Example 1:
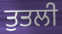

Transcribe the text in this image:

ਤੁਤਲੀ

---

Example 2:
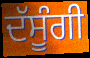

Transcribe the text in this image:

ਦੱਸੂੰਗੀ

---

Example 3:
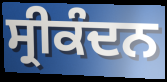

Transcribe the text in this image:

ਸ੍ਰੀਕੰਦਨ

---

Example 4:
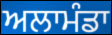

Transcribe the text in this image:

ਅਲਾਮੰਡਾ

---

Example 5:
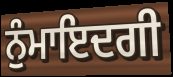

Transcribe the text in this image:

ਨੁੰਮਾਇਦਗੀ